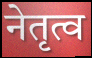
नेतृत्‍व